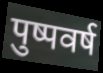
पुष्पवर्ष